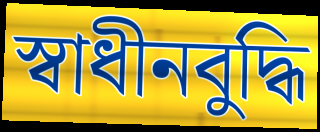
স্বাধীনবুদ্ধি